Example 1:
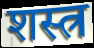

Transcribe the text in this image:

शस्त्र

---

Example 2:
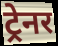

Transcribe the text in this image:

ट्रेनर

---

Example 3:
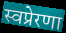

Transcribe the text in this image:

स्वप्रेरणा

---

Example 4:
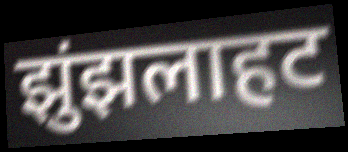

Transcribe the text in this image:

झुंझलाहट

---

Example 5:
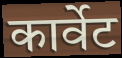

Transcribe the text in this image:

कार्वेट